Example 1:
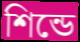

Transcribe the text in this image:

শিন্ডে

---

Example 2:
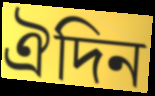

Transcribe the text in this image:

ঐদিন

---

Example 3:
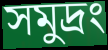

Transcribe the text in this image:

সমুদ্রং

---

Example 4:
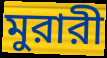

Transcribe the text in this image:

মুরারী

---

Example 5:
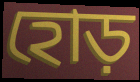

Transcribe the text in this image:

হোড়